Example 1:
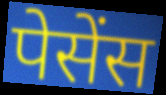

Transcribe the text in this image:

पेसेंस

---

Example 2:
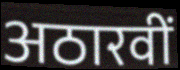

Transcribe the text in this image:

अठारवीं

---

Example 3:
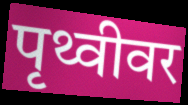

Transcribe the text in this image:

पृथ्वीवर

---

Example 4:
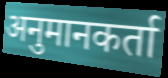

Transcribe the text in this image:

अनुमानकर्ता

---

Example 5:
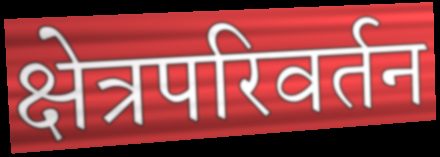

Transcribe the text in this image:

क्षेत्रपरिवर्तन